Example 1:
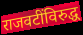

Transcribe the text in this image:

राजवटींविरुद्ध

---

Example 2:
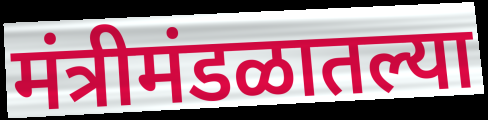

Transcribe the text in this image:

मंत्रीमंडळातल्या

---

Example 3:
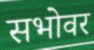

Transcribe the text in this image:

सभोवर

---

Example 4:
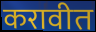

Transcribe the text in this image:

करावीत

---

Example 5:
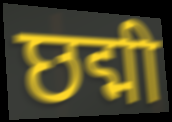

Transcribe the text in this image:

छद्मी